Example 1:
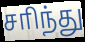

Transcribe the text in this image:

சரிந்து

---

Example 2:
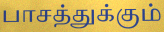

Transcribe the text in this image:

பாசத்துக்கும்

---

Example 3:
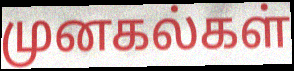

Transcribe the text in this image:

முனகல்கள்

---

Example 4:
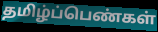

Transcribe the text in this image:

தமிழ்ப்பெண்கள்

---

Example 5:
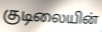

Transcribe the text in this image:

குடிலையின்